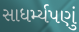
સાધર્મ્યપણું